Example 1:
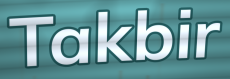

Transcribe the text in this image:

Takbir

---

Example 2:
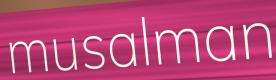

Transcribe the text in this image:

musalman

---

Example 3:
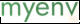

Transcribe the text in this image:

myenv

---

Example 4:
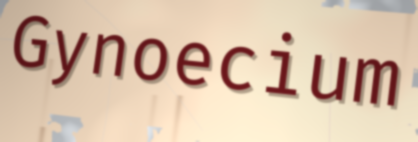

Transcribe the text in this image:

Gynoecium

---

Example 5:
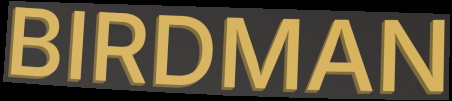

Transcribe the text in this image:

BIRDMAN